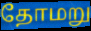
தோமறு